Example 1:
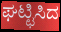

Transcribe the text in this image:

ಘಟ್ಟಿಸಿದ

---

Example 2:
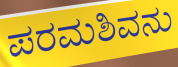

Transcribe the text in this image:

ಪರಮಶಿವನು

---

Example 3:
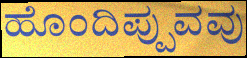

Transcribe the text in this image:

ಹೊಂದಿಪ್ಪುವವು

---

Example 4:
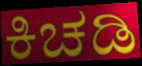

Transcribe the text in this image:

ಕಿಚಡಿ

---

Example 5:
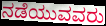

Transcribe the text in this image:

ನಡೆಯುವವರು